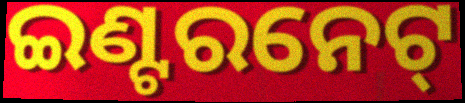
ଇଣ୍ଟରନେଟ୍